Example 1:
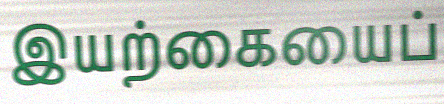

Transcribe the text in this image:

இயற்கையைப்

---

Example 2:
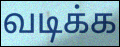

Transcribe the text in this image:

வடிக்க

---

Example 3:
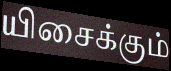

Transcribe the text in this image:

யிசைக்கும்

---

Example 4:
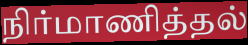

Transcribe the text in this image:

நிர்மாணித்தல்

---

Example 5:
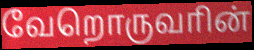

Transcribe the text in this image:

வேறொருவரின்